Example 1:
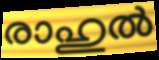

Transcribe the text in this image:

രാഹുൽ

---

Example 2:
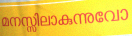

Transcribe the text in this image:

മനസ്സിലാകുന്നുവോ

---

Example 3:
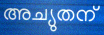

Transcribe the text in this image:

അച്യുതന്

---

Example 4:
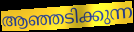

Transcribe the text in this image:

ആഞ്ഞടിക്കുന്ന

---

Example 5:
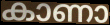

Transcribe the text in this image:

കാണാ